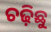
ଚଢ଼ିଛୁ